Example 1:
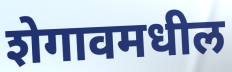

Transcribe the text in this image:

शेगावमधील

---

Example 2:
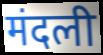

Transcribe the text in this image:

मंदली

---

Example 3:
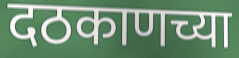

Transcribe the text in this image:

दठकाणच्या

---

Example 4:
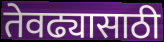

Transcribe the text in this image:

तेवढ्यासाठी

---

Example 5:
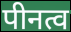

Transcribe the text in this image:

पीनत्व